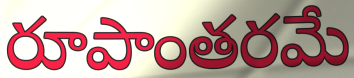
రూపాంతరమే